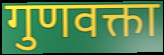
गुणवक्ता